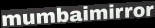
mumbaimirror